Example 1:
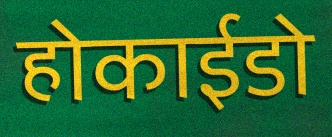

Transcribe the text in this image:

होकाईडो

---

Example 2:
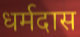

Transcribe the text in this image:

धर्मदास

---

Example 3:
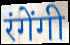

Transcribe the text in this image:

रंगेंगी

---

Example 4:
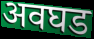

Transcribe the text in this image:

अवघड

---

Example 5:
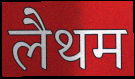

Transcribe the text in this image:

लैथम